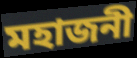
মহাজনী